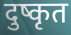
दुष्कृत